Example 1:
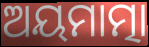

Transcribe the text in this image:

ଅୟମାତ୍ମା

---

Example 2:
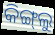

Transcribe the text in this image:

କିଙ୍ଗ୍‌ଲୁ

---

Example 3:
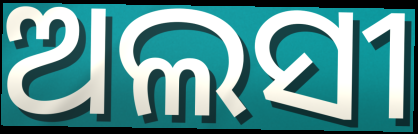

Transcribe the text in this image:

ଅଲସୀ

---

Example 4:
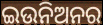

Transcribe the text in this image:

ଇଉନିଅନର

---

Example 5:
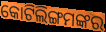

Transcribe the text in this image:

କୋଟିଲିଙ୍ଗମଙ୍କର